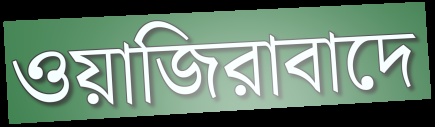
ওয়াজিরাবাদে